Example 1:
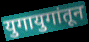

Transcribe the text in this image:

युगायुगांतून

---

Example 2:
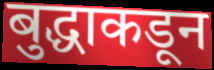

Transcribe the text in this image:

बुद्धाकडून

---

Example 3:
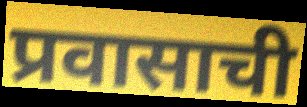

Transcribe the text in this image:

प्रवासाची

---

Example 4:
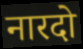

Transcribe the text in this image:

नारदो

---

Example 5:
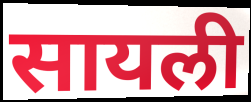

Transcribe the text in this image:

सायली